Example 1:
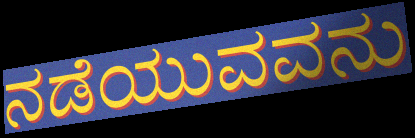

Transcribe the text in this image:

ನಡೆಯುವವನು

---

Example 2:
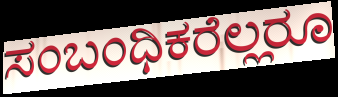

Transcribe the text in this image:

ಸಂಬಂಧಿಕರೆಲ್ಲರೂ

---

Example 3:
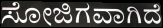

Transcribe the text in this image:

ಸೋಜಿಗವಾಗಿದೆ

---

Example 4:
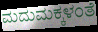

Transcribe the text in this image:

ಮದುಮಕ್ಕಳಂತೆ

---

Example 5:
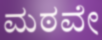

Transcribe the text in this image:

ಮಠವೇ